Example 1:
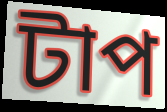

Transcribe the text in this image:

টাপ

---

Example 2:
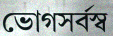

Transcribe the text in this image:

ভোগসর্বস্ব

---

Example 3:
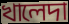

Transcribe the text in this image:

খালেদা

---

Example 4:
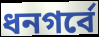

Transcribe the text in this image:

ধনগর্বে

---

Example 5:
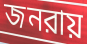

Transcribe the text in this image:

জনরায়